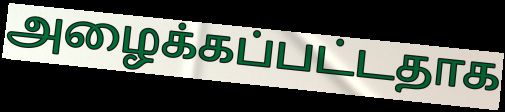
அழைக்கப்பட்டதாக